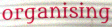
organising